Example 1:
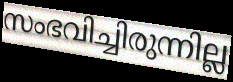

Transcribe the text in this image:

സംഭവിച്ചിരുന്നില്ല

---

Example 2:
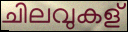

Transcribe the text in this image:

ചിലവുകള്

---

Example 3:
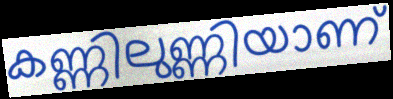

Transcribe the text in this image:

കണ്ണിലുണ്ണിയാണ്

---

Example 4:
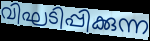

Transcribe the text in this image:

വിഘടിപ്പിക്കുന്ന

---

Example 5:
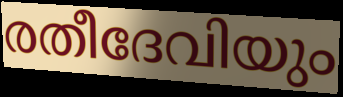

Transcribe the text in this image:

രതീദേവിയും